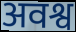
अवश्व